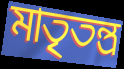
মাতৃতন্ত্র